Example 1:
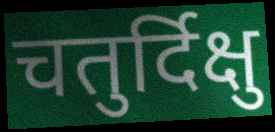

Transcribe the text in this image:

चतुर्दिक्षु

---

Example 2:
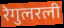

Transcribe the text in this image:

रेगुलरली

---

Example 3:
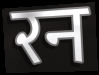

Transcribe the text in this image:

रन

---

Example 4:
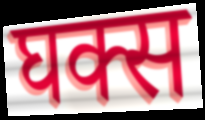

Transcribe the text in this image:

घक्स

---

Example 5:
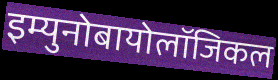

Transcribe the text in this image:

इम्युनोबायोलॉजिकल